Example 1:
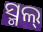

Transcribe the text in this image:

ସ୍ମଲ୍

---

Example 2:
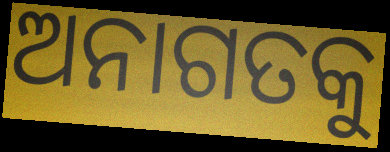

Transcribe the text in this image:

ଅନାଗତକୁ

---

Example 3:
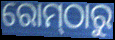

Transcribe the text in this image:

ରୋମ୍‌ଠାରୁ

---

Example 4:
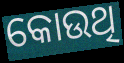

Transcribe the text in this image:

କୋଉଥି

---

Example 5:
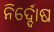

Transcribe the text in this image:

ନିର୍ଦ୍ଦୋଷ